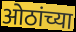
ओठांच्या